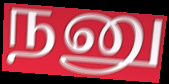
நனு